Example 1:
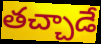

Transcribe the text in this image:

తచ్చాడే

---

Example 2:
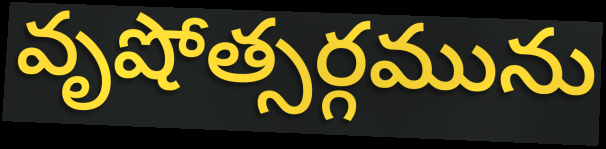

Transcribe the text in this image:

వృషోత్సర్గమును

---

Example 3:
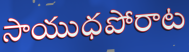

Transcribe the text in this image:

సాయుధపోరాట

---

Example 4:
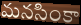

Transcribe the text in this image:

మనసింకా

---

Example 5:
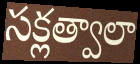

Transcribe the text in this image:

సక్లత్వాలా